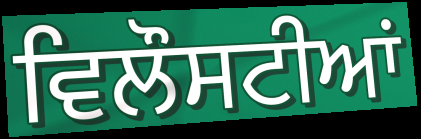
ਵਿਲੌਸਟੀਆਂ